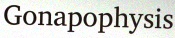
Gonapophysis